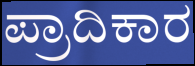
ಪ್ರಾದಿಕಾರ